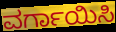
ವರ್ಗಾಯಿಸಿ